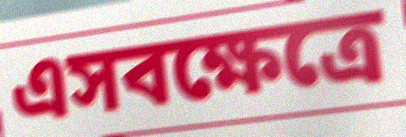
এসবক্ষেত্রে